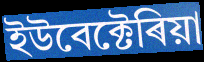
ইউবেক্টেৰিয়া